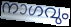
നാഗവും